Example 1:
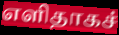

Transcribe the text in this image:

எளிதாகச்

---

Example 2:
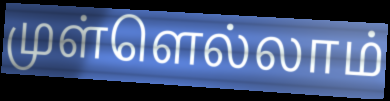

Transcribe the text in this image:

முள்ளெல்லாம்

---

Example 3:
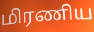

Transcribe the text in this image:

மிரணிய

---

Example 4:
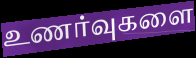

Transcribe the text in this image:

உணர்வுகளை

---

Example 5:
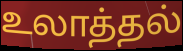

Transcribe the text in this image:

உலாத்தல்